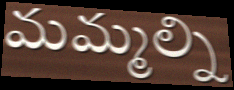
మమ్మల్ని